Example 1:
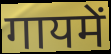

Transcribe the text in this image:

गायमें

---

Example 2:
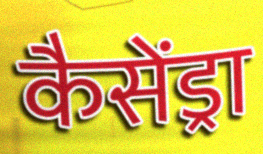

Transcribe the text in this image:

कैसेंड्रा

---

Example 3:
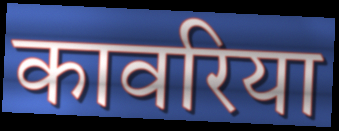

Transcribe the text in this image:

कावरिया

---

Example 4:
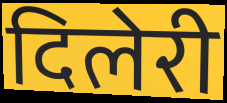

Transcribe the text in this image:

दिलेरी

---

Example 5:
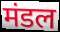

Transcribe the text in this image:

मंडल